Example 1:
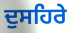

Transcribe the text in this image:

ਦੁਸਹਿਰੇ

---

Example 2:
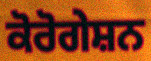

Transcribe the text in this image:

ਕੋਰੋਗੇਸ਼ਨ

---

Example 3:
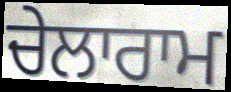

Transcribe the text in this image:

ਚੇਲਾਰਾਮ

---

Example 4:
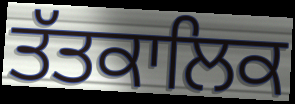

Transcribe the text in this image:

ਤੱਤਕਾਲਿਕ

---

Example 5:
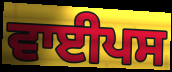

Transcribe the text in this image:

ਵਾਈਪਸ